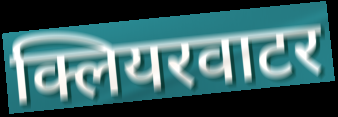
क्लियरवाटर